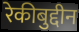
रेकीबुद्दीन